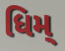
ધિમ્